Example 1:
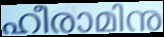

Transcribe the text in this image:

ഹീരാമിനു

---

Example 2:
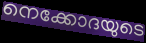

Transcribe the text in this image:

നെക്കോദയുടെ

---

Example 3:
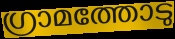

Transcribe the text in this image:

ഗ്രാമത്തോടു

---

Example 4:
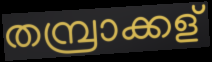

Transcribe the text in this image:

തമ്പ്രാക്കള്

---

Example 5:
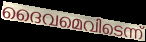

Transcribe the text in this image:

ദൈവമെവിടെന്ന്